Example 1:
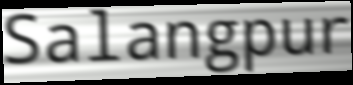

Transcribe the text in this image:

Salangpur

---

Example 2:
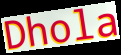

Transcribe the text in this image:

Dhola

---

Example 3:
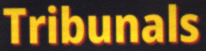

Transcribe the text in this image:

Tribunals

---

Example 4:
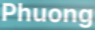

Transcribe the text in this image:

Phuong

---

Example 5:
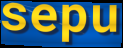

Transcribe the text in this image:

sepu